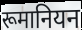
रूमानियन